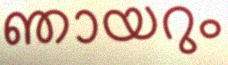
ഞായറും